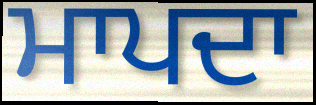
ਮਾਪਦਾ